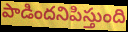
పాడిందనిపిస్తుంది